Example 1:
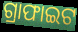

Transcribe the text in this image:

ଗ୍ରାଫାଇଟ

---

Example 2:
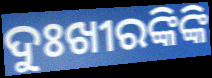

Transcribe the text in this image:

ଦୁଃଖୀରଙ୍କିଙ୍କି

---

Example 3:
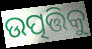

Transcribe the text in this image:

ଉତ୍ପତ୍ତିକୁ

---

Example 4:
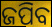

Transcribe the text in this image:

ଜପିବ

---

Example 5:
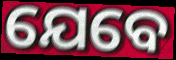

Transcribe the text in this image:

ଯେବେ